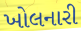
ખોલનારી